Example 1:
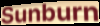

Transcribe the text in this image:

Sunburn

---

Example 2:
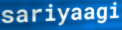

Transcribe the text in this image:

sariyaagi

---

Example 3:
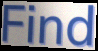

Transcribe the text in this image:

Find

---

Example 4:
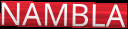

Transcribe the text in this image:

NAMBLA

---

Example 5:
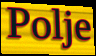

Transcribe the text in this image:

Polje